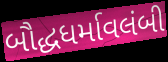
બૌદ્ધધર્માવલંબી